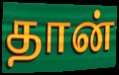
தான்